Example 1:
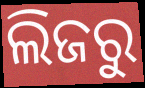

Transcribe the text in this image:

ଲିଜରୁ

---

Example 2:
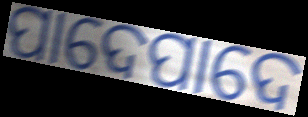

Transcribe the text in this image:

ପାଦେପାଦେ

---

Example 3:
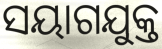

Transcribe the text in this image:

ସୟାଗଯୁକ୍ତ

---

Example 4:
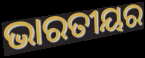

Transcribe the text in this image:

ଭାରତୀୟର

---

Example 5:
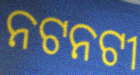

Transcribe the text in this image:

ନଟନଟୀ